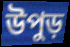
উপুড়